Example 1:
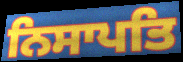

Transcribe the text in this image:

ਨਿਸਾਪਤਿ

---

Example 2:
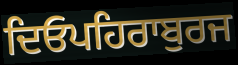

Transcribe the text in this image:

ਦਿਓਪਹਿਰਾਬੁਰਜ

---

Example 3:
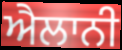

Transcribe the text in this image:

ਐਲਾਨੀ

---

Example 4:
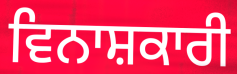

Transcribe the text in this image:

ਵਿਨਾਸ਼ਕਾਰੀ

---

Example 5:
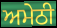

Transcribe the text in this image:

ਅਮੇਠੀ